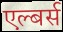
एल्बर्स